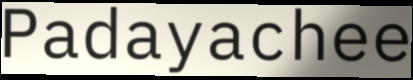
Padayachee